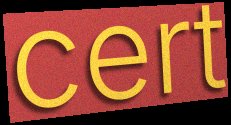
cert